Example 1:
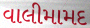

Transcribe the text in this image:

વાલીમામદ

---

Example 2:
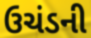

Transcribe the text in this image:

ઉચંડની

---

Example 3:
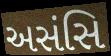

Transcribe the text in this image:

અસંસિ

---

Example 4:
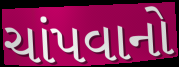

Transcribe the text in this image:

ચાંપવાનો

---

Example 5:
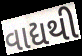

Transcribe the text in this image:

વાદ્યથી